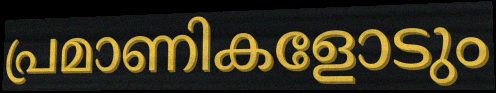
പ്രമാണികളോടും